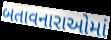
બતાવનારાઓમાં